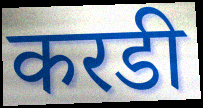
करडी